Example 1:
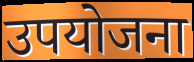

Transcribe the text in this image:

उपयोजना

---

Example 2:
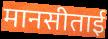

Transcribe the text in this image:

मानसीताई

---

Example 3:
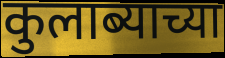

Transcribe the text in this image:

कुलाब्याच्या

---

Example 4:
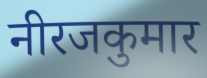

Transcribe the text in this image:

नीरजकुमार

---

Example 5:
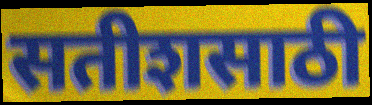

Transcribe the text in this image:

सतीशसाठी